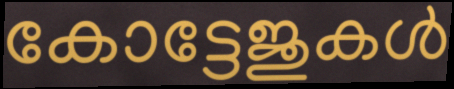
കോട്ടേജുകൾ